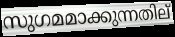
സുഗമമാക്കുന്നതില്